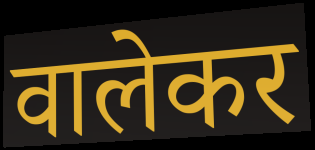
वालेकर